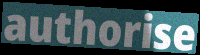
authorise